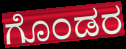
ಗೊಂಡರ